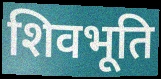
शिवभूति